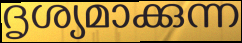
ദൃശ്യമാക്കുന്ന